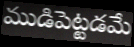
ముడిపెట్టడమే